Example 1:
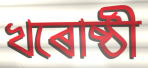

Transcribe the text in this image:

খৰোষ্ঠী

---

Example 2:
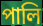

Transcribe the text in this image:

পালি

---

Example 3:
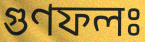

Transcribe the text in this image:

গুণফলঃ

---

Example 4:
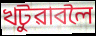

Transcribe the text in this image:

খটুৱাবলৈ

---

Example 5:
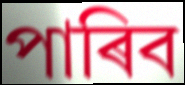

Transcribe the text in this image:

পাৰিব